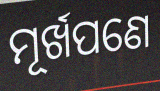
ମୂର୍ଖପଣେ